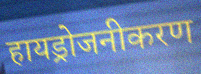
हायड्रोजनीकरण